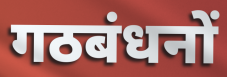
गठबंधनों